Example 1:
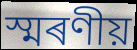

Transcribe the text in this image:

স্মৰণীয়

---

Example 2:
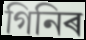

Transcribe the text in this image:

গিনিৰ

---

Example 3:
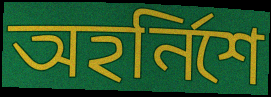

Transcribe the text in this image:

অহৰ্নিশে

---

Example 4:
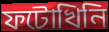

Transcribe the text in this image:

ফটোখিনি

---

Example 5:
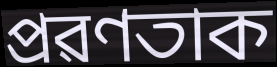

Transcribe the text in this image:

প্ৰৱণতাক